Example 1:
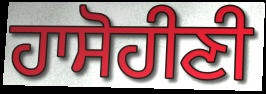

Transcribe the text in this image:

ਹਾਸੋਹੀਣੀ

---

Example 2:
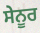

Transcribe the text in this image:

ਸੇਨੂਰ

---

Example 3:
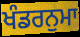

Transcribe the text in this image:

ਖੰਡਰਨੁਮਾ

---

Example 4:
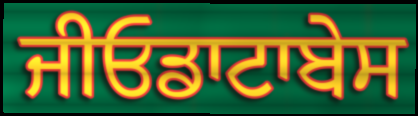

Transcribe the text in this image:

ਜੀਓਡਾਟਾਬੇਸ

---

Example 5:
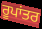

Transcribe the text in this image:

ਰੂਪਾਂਤਰ